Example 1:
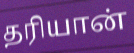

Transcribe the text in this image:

தரியான்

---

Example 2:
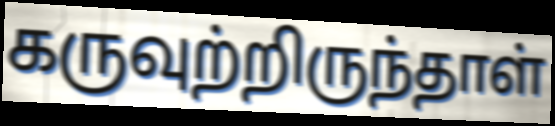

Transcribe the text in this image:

கருவுற்றிருந்தாள்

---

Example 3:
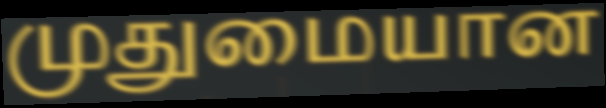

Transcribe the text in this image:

முதுமையான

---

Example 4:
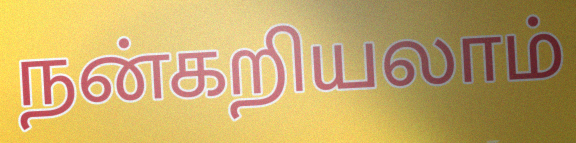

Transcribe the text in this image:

நன்கறியலாம்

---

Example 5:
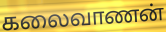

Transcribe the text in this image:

கலைவாணன்